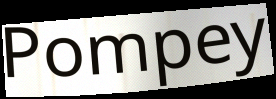
Pompey